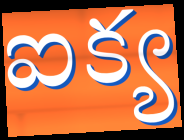
ఐక్య